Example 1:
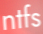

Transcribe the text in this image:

ntfs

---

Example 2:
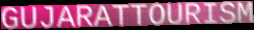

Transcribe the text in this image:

GUJARATTOURISM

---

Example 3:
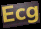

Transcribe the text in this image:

Ecg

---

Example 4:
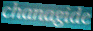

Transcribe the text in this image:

chanagide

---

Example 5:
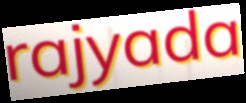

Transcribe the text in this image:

rajyada